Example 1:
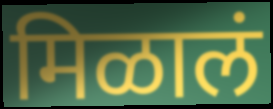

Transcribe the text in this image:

मिळालं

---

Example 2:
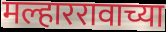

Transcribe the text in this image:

मल्हाररावाच्या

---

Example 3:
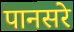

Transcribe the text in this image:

पानसरे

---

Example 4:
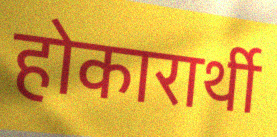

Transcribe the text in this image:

होकारार्थी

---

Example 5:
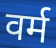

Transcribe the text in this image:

वर्म